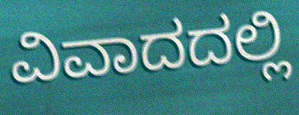
ವಿವಾದದಲ್ಲಿ